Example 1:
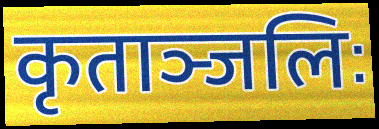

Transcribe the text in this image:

कृताञ्जलिः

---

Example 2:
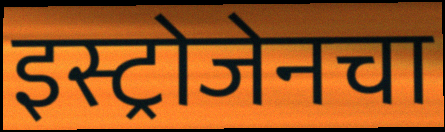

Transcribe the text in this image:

इस्ट्रोजेनचा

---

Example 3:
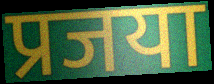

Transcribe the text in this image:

प्रजया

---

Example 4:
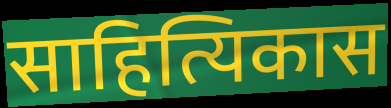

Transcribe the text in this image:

साहित्यिकास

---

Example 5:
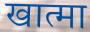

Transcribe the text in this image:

खात्मा